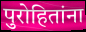
पुरोहितांना